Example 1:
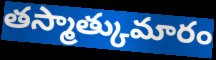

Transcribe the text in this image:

తస్మాత్కుమారం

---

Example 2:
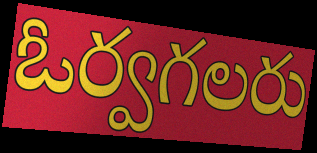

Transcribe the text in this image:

ఓర్వగలరు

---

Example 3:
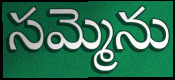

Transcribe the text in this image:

సమ్మెను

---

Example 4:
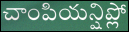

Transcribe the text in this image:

చాంపియన్షిప్లో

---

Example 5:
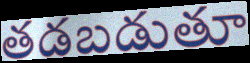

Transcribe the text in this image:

తడబడుతూ